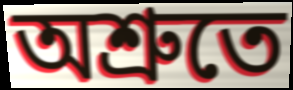
অশ্রুতে